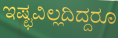
ಇಷ್ಟವಿಲ್ಲದಿದ್ದರೂ